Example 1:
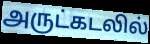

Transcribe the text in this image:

அருட்கடலில்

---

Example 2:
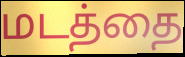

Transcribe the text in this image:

மடத்தை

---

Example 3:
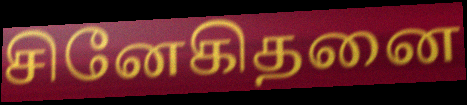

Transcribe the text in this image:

சினேகிதனை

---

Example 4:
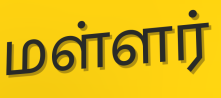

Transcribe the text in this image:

மள்ளர்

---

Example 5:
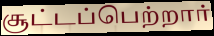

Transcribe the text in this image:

சூட்டப்பெற்றார்